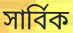
সার্বিক